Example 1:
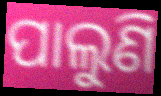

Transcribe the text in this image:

ପାଲୁଣି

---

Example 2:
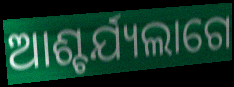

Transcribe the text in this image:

ଆଶ୍ଚର୍ଯ୍ୟଲାଗେ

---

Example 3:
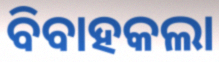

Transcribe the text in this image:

ବିବାହକଲା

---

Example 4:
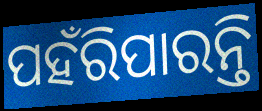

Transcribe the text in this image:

ପହଁରିପାରନ୍ତି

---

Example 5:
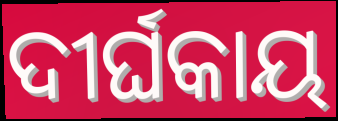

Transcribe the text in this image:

ଦୀର୍ଘକାୟ